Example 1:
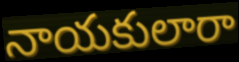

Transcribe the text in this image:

నాయకులారా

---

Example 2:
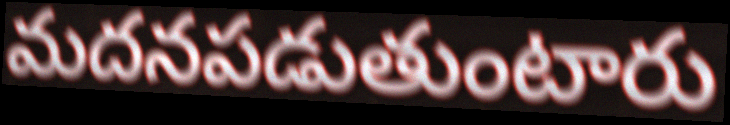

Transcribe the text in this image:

మదనపడుతుంటారు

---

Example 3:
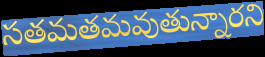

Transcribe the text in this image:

సతమతమవుతున్నారని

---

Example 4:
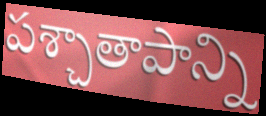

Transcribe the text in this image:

పశ్చాతాపాన్ని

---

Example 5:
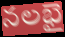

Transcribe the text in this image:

నలభై